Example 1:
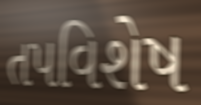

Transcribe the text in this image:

તપવિશેષ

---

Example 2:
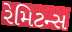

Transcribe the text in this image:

રેમિટન્સ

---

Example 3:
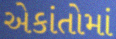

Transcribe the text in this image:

એકાંતોમાં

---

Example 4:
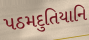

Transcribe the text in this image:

પઠમદુતિયાનિ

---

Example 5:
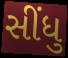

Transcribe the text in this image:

સીંધુ